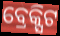
ବ୍ରେକ୍ସିଟ